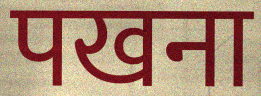
पखना